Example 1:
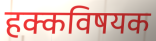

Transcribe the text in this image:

हक्कविषयक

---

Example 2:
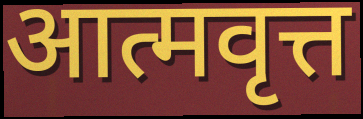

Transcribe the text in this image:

आत्मवृत्त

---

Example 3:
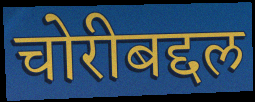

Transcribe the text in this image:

चोरीबद्दल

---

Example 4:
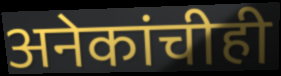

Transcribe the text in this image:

अनेकांचीही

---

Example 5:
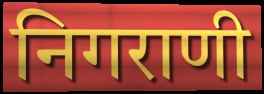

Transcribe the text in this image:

निगराणी